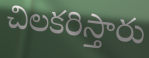
చిలకరిస్తారు